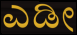
ಎಡೀ